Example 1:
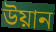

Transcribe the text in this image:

উয়ান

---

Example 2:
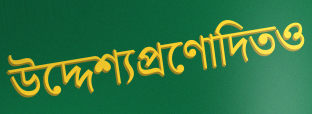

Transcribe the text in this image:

উদ্দেশ্যপ্রণোদিতও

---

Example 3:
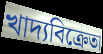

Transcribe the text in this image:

খাদ্যবিক্রেতা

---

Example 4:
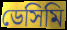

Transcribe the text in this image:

ডেসিমি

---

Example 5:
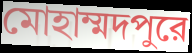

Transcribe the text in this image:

মোহাম্মদপুরে